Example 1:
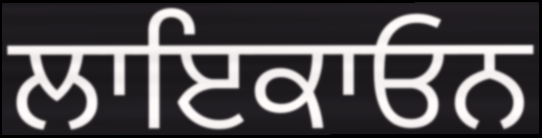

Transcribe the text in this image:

ਲਾਇਕਾਓਨ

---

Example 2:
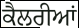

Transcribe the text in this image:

ਕੈਲਰੀਆਂ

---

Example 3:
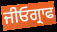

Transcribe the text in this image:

ਜੀਓਗ੍ਰਾਫ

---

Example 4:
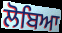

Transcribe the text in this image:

ਲੋਬਿਆ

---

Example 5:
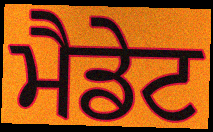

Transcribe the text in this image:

ਮੈਡੇਟ